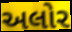
અલોર